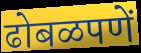
ढोबळपणें